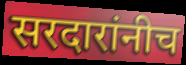
सरदारांनीच